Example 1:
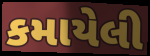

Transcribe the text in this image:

કમાયેલી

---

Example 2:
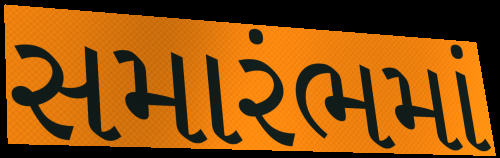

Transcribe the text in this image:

સમારંભમાં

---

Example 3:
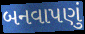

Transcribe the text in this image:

બનવાપણું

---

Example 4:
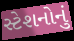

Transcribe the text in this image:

સ્ટેશનોનું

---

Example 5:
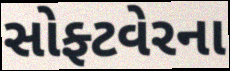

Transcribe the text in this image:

સોફ્ટવેરના